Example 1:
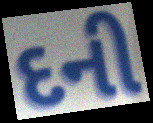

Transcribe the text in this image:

દની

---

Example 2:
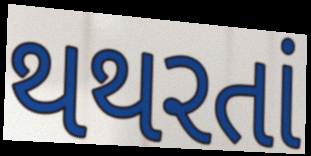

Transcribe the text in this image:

થથરતાં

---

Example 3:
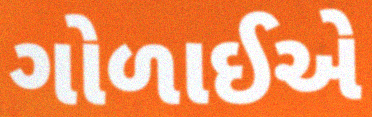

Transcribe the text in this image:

ગોળાઈએ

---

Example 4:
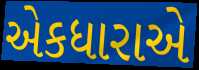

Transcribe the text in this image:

એકધારાએ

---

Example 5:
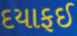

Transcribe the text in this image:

દયાફઈ